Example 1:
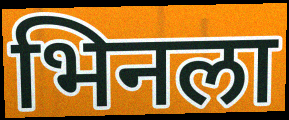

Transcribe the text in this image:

भिनला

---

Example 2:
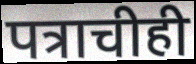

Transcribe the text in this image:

पत्राचीही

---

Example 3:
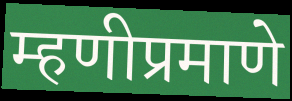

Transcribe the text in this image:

म्हणीप्रमाणे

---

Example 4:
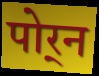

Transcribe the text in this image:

पोर्न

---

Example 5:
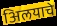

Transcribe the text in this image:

अिलयाचे